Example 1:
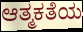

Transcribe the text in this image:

ಆತ್ಮಕತೆಯ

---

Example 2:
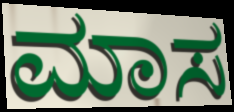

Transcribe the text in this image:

ಮಾಸ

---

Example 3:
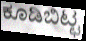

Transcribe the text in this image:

ಕೂಡಿಬಿಟ್ಟ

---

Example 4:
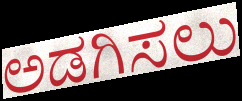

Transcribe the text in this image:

ಅಡಗಿಸಲು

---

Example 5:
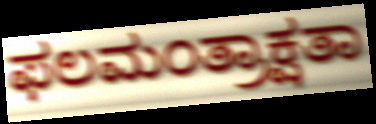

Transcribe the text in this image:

ಫಲಮಂತ್ರಾಕ್ಷತಾ